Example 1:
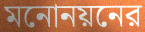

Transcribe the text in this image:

মনোনয়নের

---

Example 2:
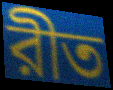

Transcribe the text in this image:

রীত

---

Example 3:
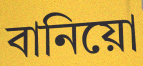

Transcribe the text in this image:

বানিয়ো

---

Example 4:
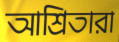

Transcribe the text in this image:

আশ্রিতারা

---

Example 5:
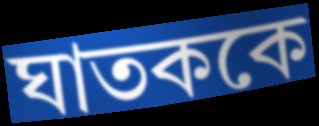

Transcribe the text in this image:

ঘাতককে